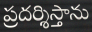
ప్రదర్శిస్తాను